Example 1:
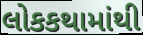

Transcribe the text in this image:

લોકકથામાંથી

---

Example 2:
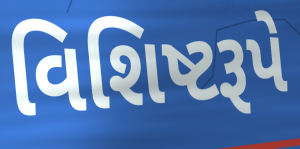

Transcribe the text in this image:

વિશિષ્ટરૂપે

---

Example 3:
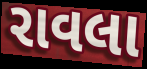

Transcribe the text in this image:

રાવલા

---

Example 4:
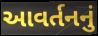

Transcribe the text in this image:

આવર્તનનું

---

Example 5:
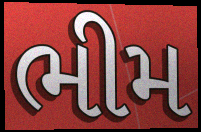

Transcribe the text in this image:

ભીમ